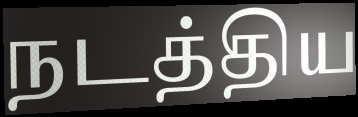
நடத்திய